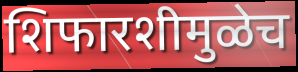
शिफारशीमुळेच